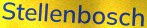
Stellenbosch